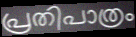
പ്രതിപാത്രം